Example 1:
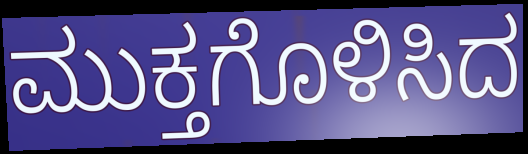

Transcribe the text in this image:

ಮುಕ್ತಗೊಳಿಸಿದ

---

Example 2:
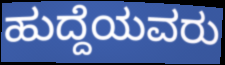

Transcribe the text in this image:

ಹುದ್ದೆಯವರು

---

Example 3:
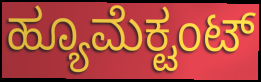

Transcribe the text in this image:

ಹ್ಯೂಮೆಕ್ಟಂಟ್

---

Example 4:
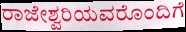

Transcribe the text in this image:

ರಾಜೇಶ್ವರಿಯವರೊಂದಿಗೆ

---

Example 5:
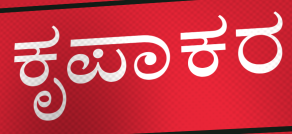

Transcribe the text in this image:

ಕೃಪಾಕರ